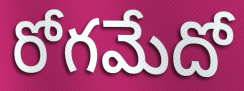
రోగమేదో